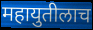
महायुतीलाच